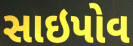
સાઇપોવ